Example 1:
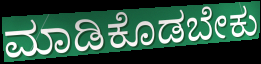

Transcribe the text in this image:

ಮಾಡಿಕೊಡಬೇಕು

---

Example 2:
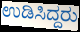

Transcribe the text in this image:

ಉಡಿಸಿದ್ದರು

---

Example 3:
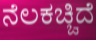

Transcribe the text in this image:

ನೆಲಕಚ್ಚಿದೆ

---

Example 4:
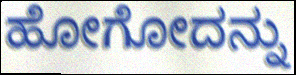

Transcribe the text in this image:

ಹೋಗೋದನ್ನು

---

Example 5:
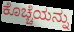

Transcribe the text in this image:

ಕೊಚ್ಚೆಯನ್ನು